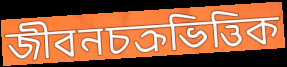
জীবনচক্রভিত্তিক